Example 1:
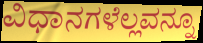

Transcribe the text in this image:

ವಿಧಾನಗಳೆಲ್ಲವನ್ನೂ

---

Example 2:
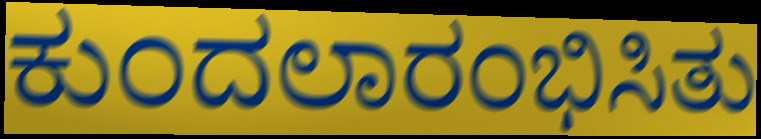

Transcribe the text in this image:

ಕುಂದಲಾರಂಭಿಸಿತು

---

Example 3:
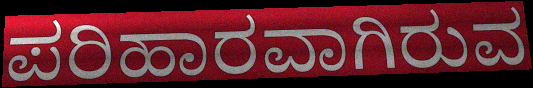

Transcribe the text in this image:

ಪರಿಹಾರವಾಗಿರುವ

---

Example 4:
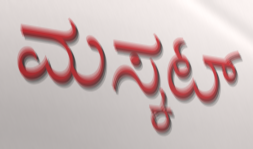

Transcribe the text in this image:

ಮಸ್ಕಟ್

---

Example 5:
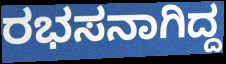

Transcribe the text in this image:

ರಭಸನಾಗಿದ್ದ